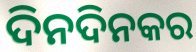
ଦିନଦିନକର